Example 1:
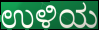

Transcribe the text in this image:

ಉಳಿಯ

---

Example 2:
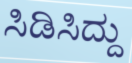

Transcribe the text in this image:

ಸಿಡಿಸಿದ್ದು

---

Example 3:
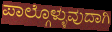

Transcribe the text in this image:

ಪಾಲ್ಗೊಳ್ಳುವುದಾಗಿ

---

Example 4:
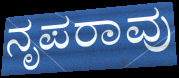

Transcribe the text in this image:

ನೃಪರಾವು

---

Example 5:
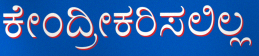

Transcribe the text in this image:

ಕೇಂದ್ರೀಕರಿಸಲಿಲ್ಲ